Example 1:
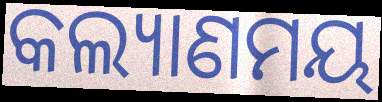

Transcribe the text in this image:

କଲ୍ୟାଣମୟ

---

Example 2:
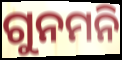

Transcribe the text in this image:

ଗୁନମନି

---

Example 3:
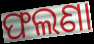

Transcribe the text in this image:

ଫଲଣା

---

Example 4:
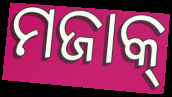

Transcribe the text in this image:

ମଜାକ୍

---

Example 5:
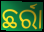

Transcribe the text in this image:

ଛର୍ରା